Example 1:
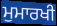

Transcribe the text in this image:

ਮੁਮਾਰਖੀ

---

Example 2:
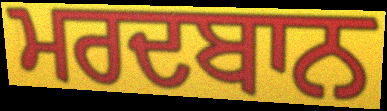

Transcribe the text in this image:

ਮਰਦਬਾਨ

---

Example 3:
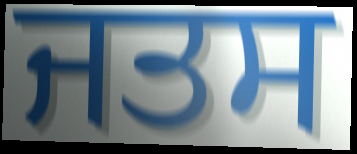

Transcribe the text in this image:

ਜਤਸ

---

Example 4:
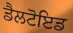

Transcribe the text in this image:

ਡੈਲਟੋਇਡ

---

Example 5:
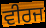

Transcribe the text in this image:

ਵੀਰਜ